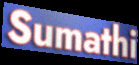
Sumathi